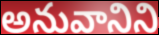
అనువానిని